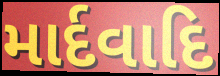
માર્દવાદિ